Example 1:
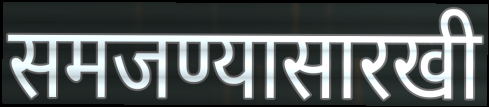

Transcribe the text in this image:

समजण्यासारखी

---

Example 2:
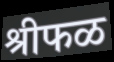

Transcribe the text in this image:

श्रीफळ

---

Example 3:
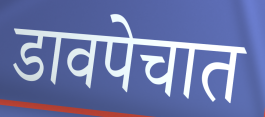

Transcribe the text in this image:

डावपेचात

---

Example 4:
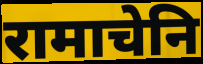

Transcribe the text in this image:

रामाचेनि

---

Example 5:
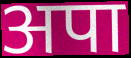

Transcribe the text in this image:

अपा